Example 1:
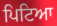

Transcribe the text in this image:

ਪਿਟਿਆ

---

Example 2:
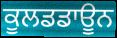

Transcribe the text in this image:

ਕੂਲਡਡਾਊਨ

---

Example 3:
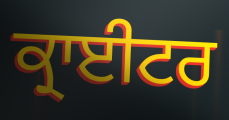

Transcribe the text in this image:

ਕ੍ਰਾਈਟਰ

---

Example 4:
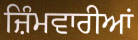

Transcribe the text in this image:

ਜ਼ਿੰਮਵਾਰੀਆਂ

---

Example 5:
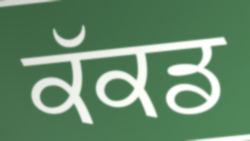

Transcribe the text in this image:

ਕੱਕਡ